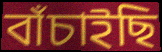
বাঁচাইছি